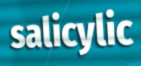
salicylic